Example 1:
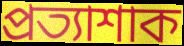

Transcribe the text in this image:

প্ৰত্যাশাক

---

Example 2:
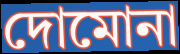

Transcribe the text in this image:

দোমোনা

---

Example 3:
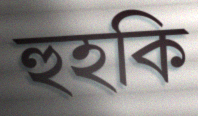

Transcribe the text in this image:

হুহকি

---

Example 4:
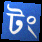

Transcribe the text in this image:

টং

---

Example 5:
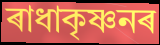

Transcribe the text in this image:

ৰাধাকৃষ্ণনৰ